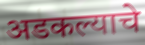
अडकल्याचे